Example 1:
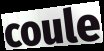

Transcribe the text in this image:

coule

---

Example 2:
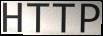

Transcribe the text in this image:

HTTP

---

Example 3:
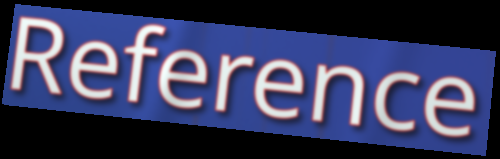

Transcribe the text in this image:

Reference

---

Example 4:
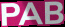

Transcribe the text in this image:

PAB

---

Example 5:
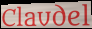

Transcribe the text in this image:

Claudel